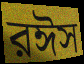
রঈস